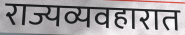
राज्यव्यवहारात